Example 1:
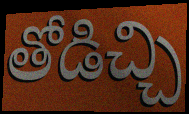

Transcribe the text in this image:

తోడిచ్చి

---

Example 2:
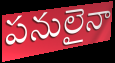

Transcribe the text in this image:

పనులైనా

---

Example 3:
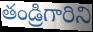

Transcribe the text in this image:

తండ్రిగారిని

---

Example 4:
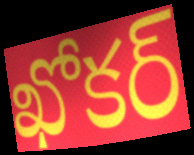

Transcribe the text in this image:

ఖోకర్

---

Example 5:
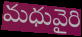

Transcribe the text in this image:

మధువైరి